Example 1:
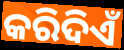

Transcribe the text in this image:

କରିଦିଏଁ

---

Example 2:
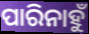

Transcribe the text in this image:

ପାରିନାହୁଁ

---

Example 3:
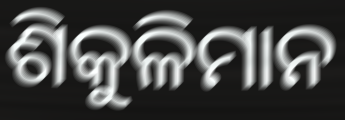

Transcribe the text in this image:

ଶିକୁଳିମାନ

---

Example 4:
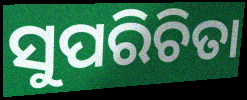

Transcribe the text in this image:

ସୁପରିଚିତା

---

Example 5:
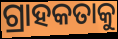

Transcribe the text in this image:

ଗ୍ରାହକତାକୁ